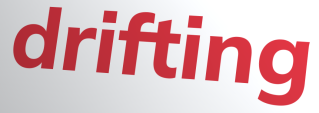
drifting